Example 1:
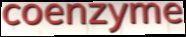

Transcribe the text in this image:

coenzyme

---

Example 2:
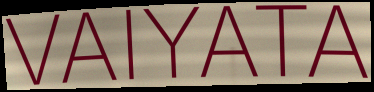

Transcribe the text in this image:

VAIYATA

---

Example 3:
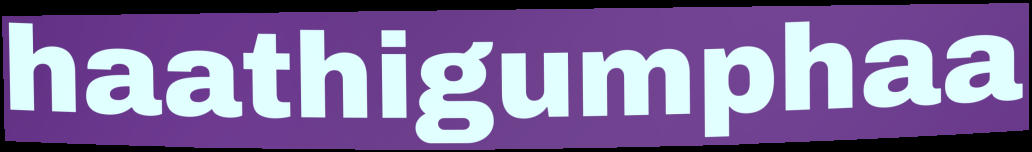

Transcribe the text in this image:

haathigumphaa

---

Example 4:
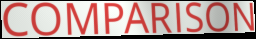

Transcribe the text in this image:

COMPARISON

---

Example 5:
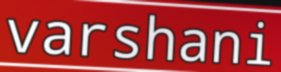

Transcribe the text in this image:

varshani